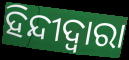
ହିନ୍ଦୀଦ୍ଵାରା